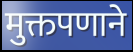
मुक्तपणाने